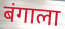
बंगाला